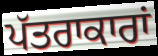
ਪੱਤਰਾਕਾਰਾਂ